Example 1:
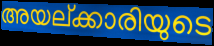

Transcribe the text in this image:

അയല്ക്കാരിയുടെ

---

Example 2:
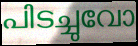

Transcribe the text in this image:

പിടച്ചുവോ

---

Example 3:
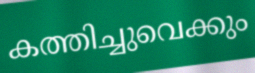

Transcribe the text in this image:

കത്തിച്ചുവെക്കും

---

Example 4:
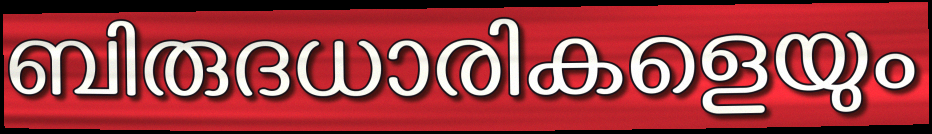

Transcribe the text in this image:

ബിരുദധാരികളെയും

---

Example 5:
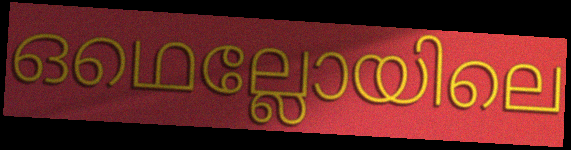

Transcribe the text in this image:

ഒഥെല്ലോയിലെ